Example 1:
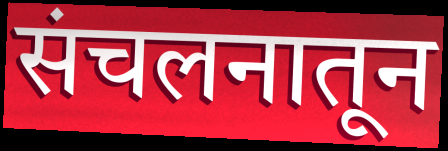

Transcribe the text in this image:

संचलनातून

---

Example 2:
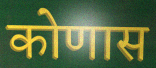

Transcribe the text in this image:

कोणास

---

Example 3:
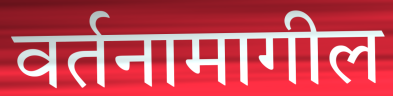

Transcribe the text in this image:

वर्तनामागील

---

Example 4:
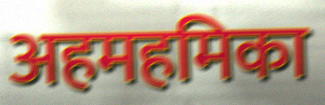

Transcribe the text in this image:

अहमहमिका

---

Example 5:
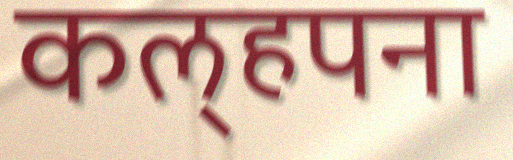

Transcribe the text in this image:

कल्हपना